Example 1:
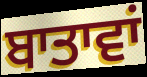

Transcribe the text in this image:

ਬਾਤਾਵਾਂ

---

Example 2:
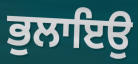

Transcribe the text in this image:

ਭੁਲਾਇਉ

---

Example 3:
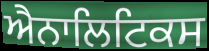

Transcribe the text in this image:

ਐਨਾਲਿਟਿਕਸ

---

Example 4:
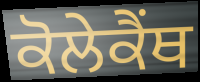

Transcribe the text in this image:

ਕੋਲੇਕੈਂਥ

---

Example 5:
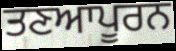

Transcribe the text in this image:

ਤਣਆਪੂਰਨ